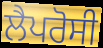
ਲੈਪਰੋਸੀ